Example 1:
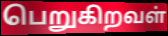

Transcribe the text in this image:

பெறுகிறவள்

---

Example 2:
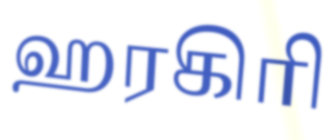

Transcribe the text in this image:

ஹரகிரி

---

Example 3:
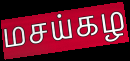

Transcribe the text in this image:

மசய்கழ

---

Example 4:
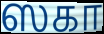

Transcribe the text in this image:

ஸகா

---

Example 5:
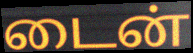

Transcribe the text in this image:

டைன்